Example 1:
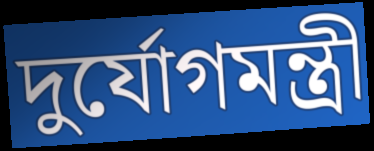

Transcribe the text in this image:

দুর্যোগমন্ত্রী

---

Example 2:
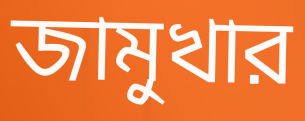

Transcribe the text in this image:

জামুখার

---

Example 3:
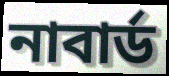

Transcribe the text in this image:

নাবার্ড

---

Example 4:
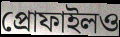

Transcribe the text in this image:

প্রোফাইলও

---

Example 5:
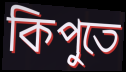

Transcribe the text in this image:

কিপুতে